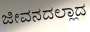
ಜೀವನದಲ್ಲಾದ